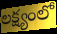
లక్ష్యంలో